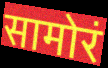
सामोरं